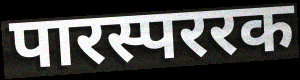
पारस्पररक